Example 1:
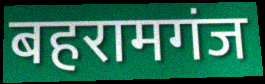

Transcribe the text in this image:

बहरामगंज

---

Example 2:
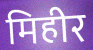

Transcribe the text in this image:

मिहीर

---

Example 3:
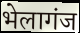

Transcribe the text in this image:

भेलागंज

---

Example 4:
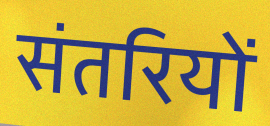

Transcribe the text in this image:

संतरियों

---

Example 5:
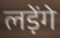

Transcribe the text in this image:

लड़ेंगे